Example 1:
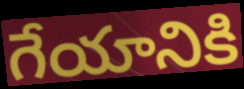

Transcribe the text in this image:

గేయానికి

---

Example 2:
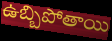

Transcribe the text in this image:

ఉబ్బిపోతాయి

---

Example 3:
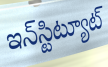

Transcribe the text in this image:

ఇన్‌స్టిట్యూట్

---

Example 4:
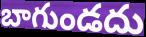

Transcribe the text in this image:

బాగుండదు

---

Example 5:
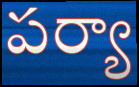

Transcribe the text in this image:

పర్యా